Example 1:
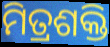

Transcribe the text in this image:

ମିତ୍ରଶକ୍ତି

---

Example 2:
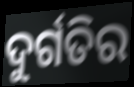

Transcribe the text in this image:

ଦୁର୍ଗତିର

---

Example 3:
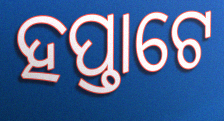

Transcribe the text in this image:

ହପ୍ତାଟେ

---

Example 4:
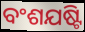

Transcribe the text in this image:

ବଂଶଯଷ୍ଟି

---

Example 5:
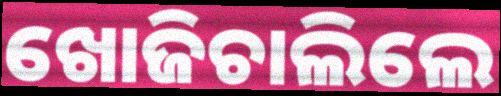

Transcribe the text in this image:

ଖୋଜିଚାଲିଲେ